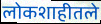
लोकशाहीतले